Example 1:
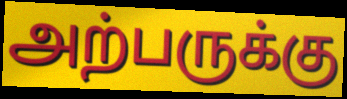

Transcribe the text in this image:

அற்பருக்கு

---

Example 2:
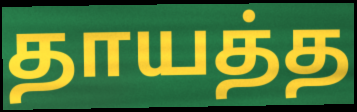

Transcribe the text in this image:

தாயத்த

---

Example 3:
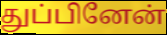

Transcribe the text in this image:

துப்பினேன்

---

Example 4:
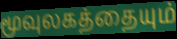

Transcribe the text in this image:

மூவுலகத்தையும்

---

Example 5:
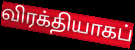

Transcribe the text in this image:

விரக்தியாகப்